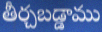
తీర్చబడ్డాము